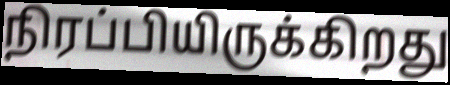
நிரப்பியிருக்கிறது